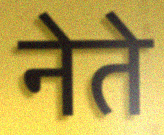
नेते